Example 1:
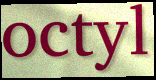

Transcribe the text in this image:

octyl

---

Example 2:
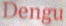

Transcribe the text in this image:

Dengu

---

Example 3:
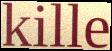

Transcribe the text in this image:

kille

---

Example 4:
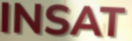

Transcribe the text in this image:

INSAT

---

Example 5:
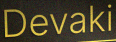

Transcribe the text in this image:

Devaki